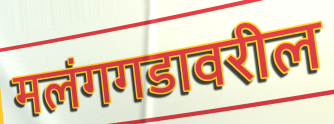
मलंगगडावरील